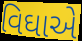
વિઘાએ